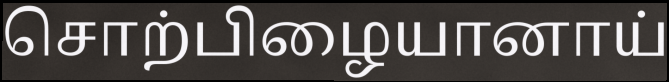
சொற்பிழையானாய்